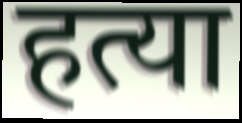
हत्‍या